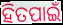
ହିତପାଇଁ